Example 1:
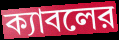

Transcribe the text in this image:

ক্যাবলের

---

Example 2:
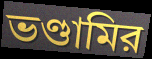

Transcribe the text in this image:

ভণ্ডামির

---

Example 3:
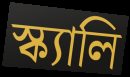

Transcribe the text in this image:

স্ক্যালি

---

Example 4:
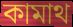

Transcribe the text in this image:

কামাথ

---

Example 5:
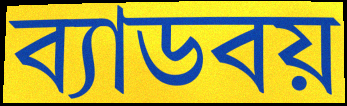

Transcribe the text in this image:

ব্যাডবয়